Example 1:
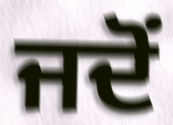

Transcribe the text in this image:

ਜਦੋਂ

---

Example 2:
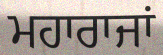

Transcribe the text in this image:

ਮਹਾਰਾਜਾਂ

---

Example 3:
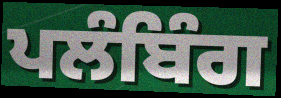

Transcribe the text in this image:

ਪਲੰਬਿੰਗ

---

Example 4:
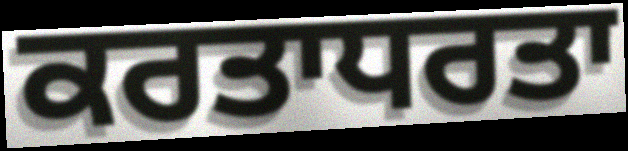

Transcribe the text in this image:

ਕਰਤਾਧਰਤਾ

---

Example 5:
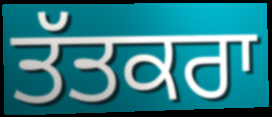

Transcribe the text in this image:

ਤੱਤਕਰਾ